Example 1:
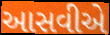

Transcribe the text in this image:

આસવીએ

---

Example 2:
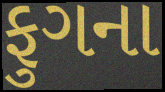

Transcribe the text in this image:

ફુગના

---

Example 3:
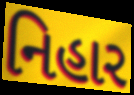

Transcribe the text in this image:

નિહાર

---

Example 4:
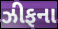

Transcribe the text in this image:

ઝીફના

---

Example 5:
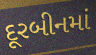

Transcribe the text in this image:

દૂરબીનમાં